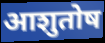
आशुतोष